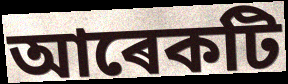
আৰেকটি